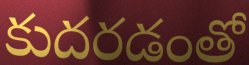
కుదరడంతో